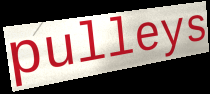
pulleys